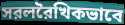
সরলরৈখিকভাবে